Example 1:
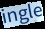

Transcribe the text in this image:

ingle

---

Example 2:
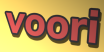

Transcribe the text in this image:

voori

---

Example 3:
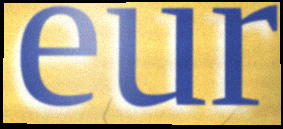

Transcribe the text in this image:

eur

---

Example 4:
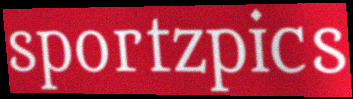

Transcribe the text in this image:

sportzpics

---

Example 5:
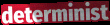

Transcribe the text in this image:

determinist